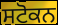
ਸਟੋਕਨ